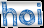
hoi